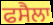
ਫਸੈਲਾ